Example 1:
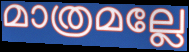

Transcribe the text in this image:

മാത്രമല്ലേ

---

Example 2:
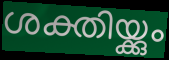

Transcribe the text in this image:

ശക്തിയ്ക്കും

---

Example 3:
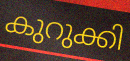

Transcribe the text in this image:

കുറുക്കി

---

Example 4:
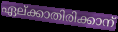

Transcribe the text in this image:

ഏല്ക്കാതിരിക്കാന്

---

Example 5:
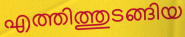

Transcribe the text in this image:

എത്തിത്തുടങ്ങിയ